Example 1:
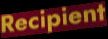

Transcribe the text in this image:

Recipient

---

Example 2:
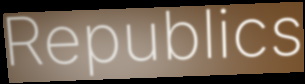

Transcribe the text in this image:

Republics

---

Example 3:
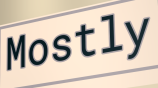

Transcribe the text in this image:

Mostly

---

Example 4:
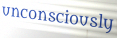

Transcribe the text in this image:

unconsciously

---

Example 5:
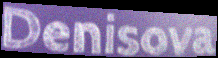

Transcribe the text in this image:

Denisova